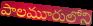
పాలమూరులోని